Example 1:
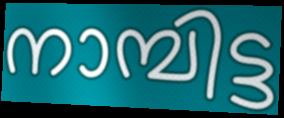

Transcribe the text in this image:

നാമ്പിട്ട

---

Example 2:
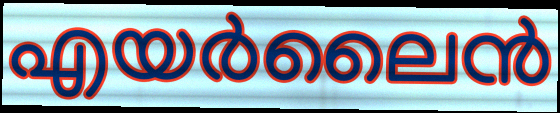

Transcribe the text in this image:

എയർലൈൻ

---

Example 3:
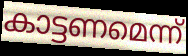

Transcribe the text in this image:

കാട്ടണമെന്ന്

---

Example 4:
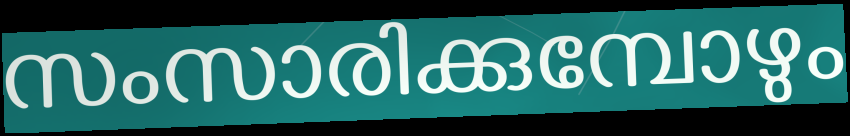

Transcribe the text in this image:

സംസാരിക്കുമ്പോഴും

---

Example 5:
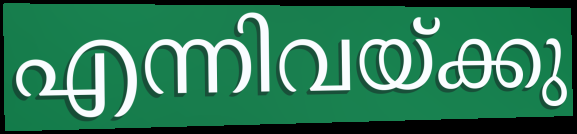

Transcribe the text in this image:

എന്നിവയ്ക്കു